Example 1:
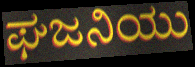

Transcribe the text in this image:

ಘಜನಿಯು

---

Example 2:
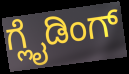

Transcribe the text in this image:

ಗ್ಲೈಡಿಂಗ್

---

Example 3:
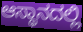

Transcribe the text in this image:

ಆಸ್ಥಾನದಲ್ಲಿ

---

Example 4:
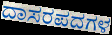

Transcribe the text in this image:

ದಾಸರಪದಗಳ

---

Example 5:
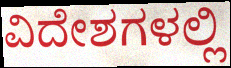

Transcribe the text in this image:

ವಿದೇಶಗಳಲ್ಲಿ